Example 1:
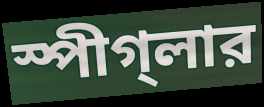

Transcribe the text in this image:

স্পীগ্‌লার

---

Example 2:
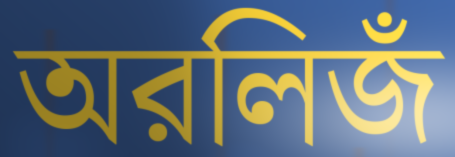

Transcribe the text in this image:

অরলিজঁ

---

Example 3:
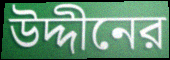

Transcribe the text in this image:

উদ্দীনের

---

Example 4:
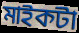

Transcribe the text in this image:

মাইকটা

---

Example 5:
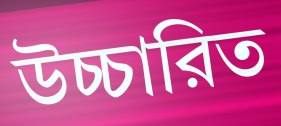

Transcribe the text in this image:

উচ্চারিত